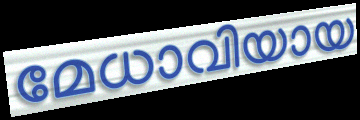
മേധാവിയായ